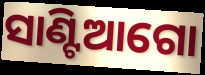
ସାଣ୍ଟିଆଗୋ